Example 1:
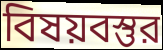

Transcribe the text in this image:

বিষয়বস্তুর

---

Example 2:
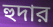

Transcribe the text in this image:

হুদার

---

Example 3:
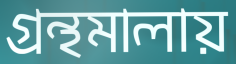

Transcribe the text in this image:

গ্রন্থমালায়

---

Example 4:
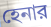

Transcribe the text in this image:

হেনার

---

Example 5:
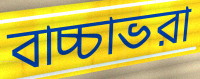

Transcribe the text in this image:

বাচ্চাভরা